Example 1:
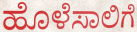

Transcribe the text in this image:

ಹೊಳೆಸಾಲಿಗೆ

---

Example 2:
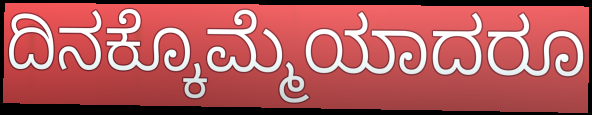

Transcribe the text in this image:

ದಿನಕ್ಕೊಮ್ಮೆಯಾದರೂ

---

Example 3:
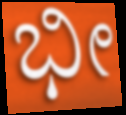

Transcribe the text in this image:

ಭೀ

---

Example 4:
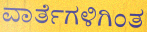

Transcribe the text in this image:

ವಾರ್ತೆಗಳಿಗಿಂತ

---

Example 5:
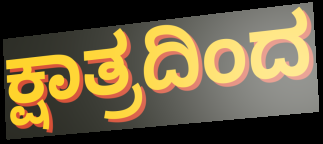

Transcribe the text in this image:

ಕ್ಷಾತ್ರದಿಂದ